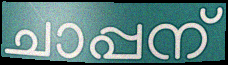
ചാപ്പന്